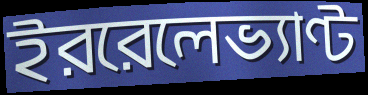
ইররেলেভ্যাণ্ট